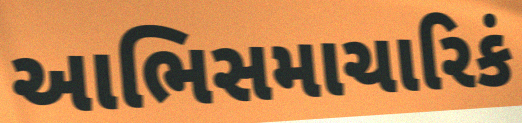
આભિસમાચારિકં